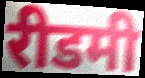
रीडमी